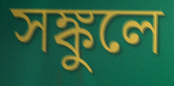
সঙ্কুলে